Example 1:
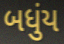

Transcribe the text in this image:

બધુંય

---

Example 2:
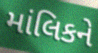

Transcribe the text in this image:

માંલિકને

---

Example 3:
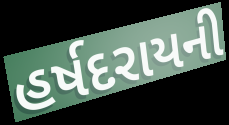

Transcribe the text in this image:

હર્ષદરાયની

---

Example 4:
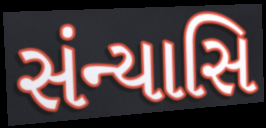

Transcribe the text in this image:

સંન્યાસિ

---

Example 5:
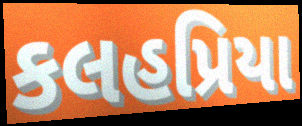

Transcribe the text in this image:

કલહપ્રિયા